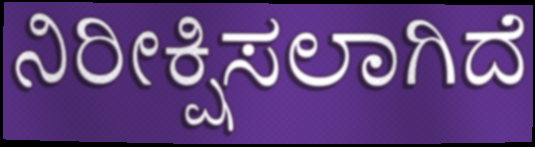
ನಿರೀಕ್ಷಿಸಲಾಗಿದೆ